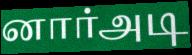
னார்அடி